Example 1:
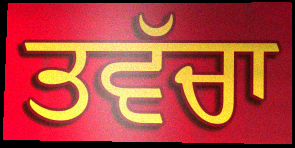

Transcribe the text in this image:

ਤਵੱਚਾ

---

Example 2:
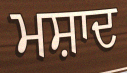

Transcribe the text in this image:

ਮਸ਼ਾਦ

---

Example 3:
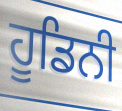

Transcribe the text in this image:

ਹੂਡਿਨੀ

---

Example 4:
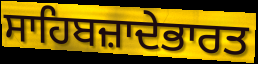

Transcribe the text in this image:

ਸਾਹਿਬਜ਼ਾਦੇਭਾਰਤ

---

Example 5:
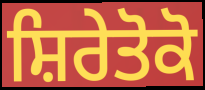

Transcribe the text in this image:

ਸ਼ਿਰੇਤੋਕੋ